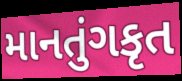
માનતુંગકૃત